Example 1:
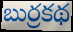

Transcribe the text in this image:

బుర్రకథ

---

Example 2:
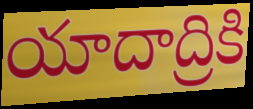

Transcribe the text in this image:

యాదాద్రికి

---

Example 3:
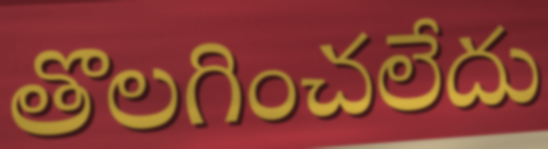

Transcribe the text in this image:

తొలగించలేదు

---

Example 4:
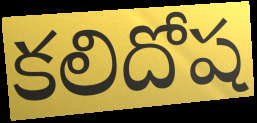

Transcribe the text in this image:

కలిదోష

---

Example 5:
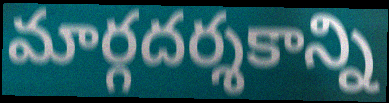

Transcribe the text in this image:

మార్గదర్శకాన్ని